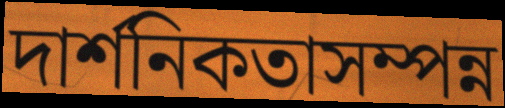
দার্শনিকতাসম্পন্ন